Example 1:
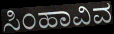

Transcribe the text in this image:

ಸಿಂಹಾವಿವ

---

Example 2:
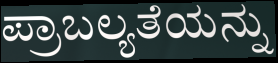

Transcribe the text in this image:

ಪ್ರಾಬಲ್ಯತೆಯನ್ನು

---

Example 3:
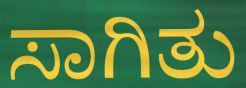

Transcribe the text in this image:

ಸಾಗಿತು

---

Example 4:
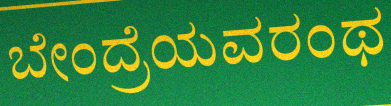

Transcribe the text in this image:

ಬೇಂದ್ರೆಯವರಂಥ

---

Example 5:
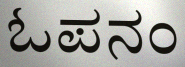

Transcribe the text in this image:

ಓಪನಂ